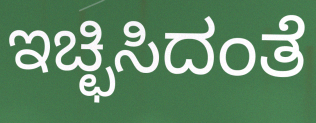
ಇಚ್ಛಿಸಿದಂತೆ